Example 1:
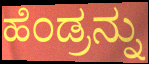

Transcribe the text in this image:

ಹೆಂಡ್ರನ್ನು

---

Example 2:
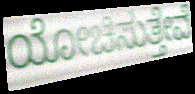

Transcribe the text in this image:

ಯೋಚಿಸುತ್ತೇವೆ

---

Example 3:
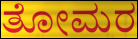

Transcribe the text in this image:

ತೋಮರ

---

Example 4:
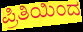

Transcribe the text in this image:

ಪ್ರಿತಿಯಿಂದ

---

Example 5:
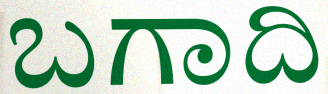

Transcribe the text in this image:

ಬಗಾದಿ